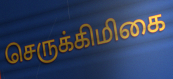
செருக்கிமிகை